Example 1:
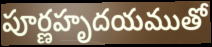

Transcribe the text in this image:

పూర్ణహృదయముతో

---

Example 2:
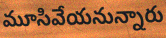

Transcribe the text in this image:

మూసివేయనున్నారు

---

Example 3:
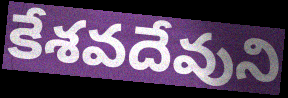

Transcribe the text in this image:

కేశవదేవుని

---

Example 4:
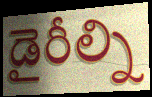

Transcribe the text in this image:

డైరీల్ని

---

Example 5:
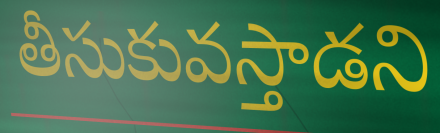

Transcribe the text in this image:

తీసుకువస్తాడని